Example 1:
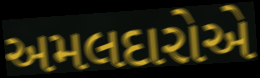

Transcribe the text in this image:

અમલદારોએ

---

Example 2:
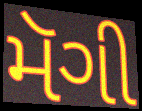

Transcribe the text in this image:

મૅગી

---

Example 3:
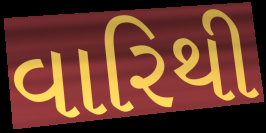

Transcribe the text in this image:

વારિથી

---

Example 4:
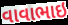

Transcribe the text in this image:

વાવાભાઇ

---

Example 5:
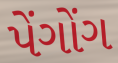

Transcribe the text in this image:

પેંગોંગ